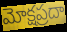
మోక్షప్రదా